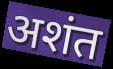
अशंत